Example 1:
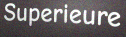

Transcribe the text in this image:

Superieure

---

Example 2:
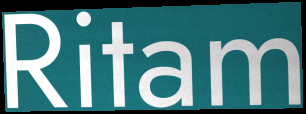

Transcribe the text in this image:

Ritam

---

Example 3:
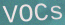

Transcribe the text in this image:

VOCs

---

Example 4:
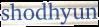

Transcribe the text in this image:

shodhyun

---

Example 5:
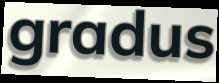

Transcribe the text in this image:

gradus